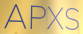
APXS